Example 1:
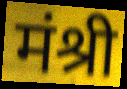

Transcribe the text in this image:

मंश्री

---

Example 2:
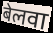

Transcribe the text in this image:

बेलवा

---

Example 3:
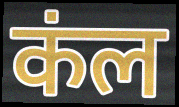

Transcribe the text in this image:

कंल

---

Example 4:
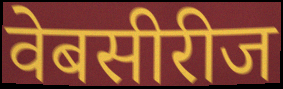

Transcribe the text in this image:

वेबसीरीज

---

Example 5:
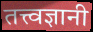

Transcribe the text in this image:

तत्त्वज्ञानी